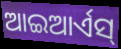
ଆଇଆର୍ଏସ୍